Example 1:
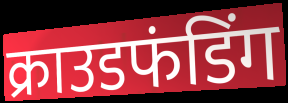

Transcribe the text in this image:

क्राउडफंडिंग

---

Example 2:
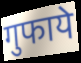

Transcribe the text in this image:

गुफाये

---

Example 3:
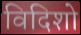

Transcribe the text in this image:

विदिशो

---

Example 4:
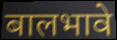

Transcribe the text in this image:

बालभावे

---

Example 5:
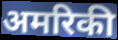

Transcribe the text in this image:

अमरिकी